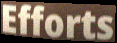
Efforts